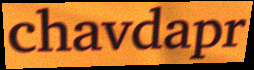
chavdapr